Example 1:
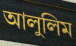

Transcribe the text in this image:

আলুলিম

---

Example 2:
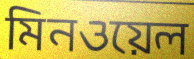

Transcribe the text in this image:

মিনওয়েল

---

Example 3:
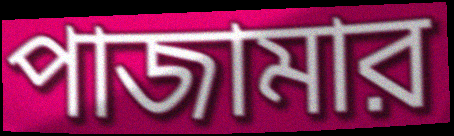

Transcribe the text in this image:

পাজামার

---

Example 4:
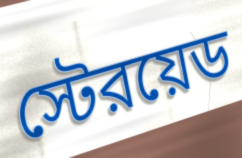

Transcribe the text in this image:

স্টেরয়েড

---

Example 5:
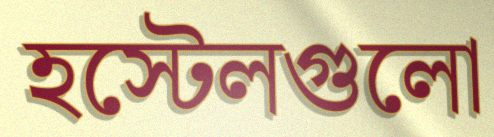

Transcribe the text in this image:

হস্টেলগুলো